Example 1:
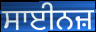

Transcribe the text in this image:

ਸਾਈਨਜ਼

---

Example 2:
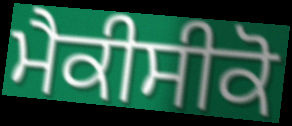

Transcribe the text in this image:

ਮੈਕੀਸੀਕੋ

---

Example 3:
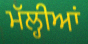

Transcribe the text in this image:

ਮੱਲ੍ਹੀਆਂ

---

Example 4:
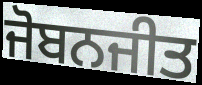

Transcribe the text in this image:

ਜੋਬਨਜੀਤ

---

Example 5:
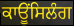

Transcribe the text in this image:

ਕਾਊਂਸਿਲੰਗ